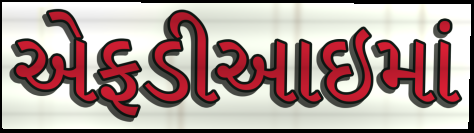
એફડીઆઇમાં